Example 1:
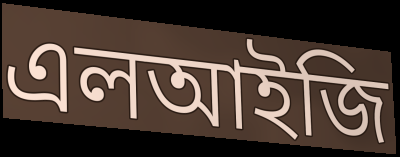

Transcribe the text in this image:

এলআইজি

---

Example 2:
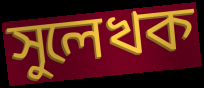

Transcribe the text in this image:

সুলেখক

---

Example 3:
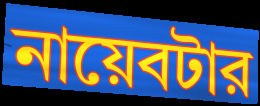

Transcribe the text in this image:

নায়েবটার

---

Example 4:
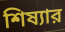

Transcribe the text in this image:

শিষ্যার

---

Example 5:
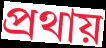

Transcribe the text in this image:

প্রথায়